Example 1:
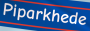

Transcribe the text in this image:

Piparkhede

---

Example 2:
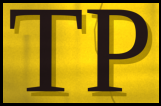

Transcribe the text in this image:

TP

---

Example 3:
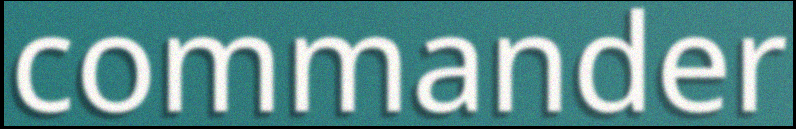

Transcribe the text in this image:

commander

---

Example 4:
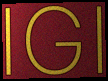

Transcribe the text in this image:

IGI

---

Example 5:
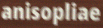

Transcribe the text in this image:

anisopliae